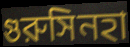
গুরুসিনহা